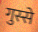
गुस्‍से